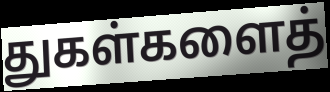
துகள்களைத்